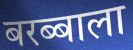
बरब्बाला